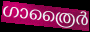
ഗാത്രൈർ